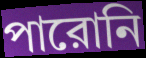
পারোনি